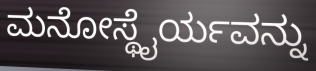
ಮನೋಸ್ಥೈರ್ಯವನ್ನು